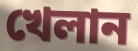
খেলান